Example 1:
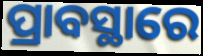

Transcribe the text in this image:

ପ୍ରାବସ୍ଥାରେ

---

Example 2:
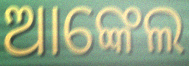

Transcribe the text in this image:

ଆଙ୍କେଲ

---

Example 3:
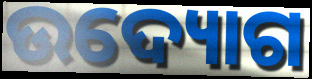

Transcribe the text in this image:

ଉଦ୍ୟୋଗ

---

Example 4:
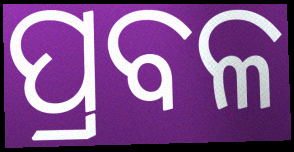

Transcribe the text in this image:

ପ୍ରବଳ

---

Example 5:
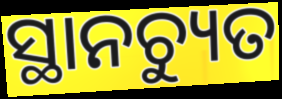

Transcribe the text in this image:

ସ୍ଥାନଚ୍ୟୁତ